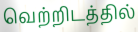
வெற்றிடத்தில்